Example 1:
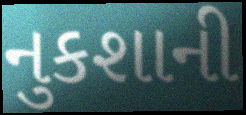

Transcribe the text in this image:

નુકશાની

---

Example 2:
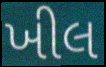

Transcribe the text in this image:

ખીલ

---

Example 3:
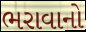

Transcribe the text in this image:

ભરાવાનો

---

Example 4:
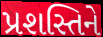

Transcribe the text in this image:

પ્રશસ્તિને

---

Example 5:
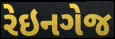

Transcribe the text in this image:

રેઇનગેજ